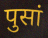
पुसां